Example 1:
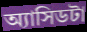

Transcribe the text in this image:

অ্যাসিডটা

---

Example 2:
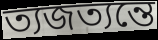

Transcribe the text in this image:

ত্যজত্যন্তে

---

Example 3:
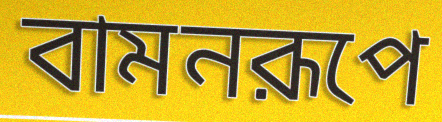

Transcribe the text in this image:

বামনরূপে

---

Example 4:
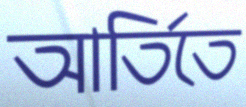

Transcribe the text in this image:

আর্তিতে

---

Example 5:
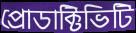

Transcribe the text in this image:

প্রোডাক্টিভিটি